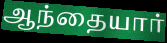
ஆந்தையார்